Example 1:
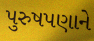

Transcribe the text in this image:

પુરુષપણાને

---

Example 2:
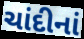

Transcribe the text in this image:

ચાંદીનાં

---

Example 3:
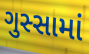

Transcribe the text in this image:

ગુસ્સામાં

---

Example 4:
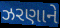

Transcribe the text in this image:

ઝરણાને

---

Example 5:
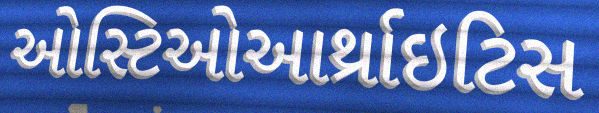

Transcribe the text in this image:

ઓસ્ટિઓઆર્થ્રાઇટિસ